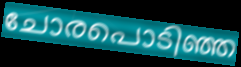
ചോരപൊടിഞ്ഞ